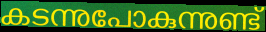
കടന്നുപോകുന്നുണ്ട്